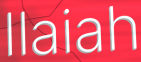
Ilaiah